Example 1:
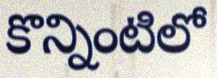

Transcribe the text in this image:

కొన్నింటిలో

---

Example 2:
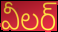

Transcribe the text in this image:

వీలర్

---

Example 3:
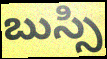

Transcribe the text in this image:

బుస్సి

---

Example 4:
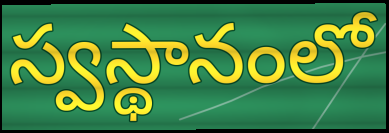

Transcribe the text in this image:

స్వస్థానంలో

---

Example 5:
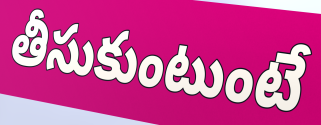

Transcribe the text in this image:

తీసుకుంటుంటే